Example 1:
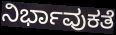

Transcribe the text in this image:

ನಿರ್ಭಾವುಕತೆ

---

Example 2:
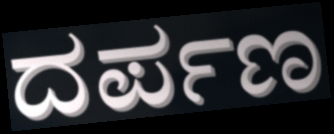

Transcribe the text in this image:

ದರ್ಪಣ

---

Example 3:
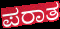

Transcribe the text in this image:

ಪರಾತ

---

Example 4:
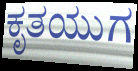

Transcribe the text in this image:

ಕೃತಯುಗ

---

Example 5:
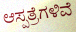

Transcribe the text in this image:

ಆಸ್ಪತ್ರೆಗಳಿವೆ